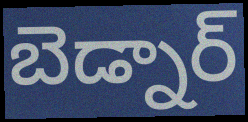
బెడ్నార్